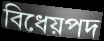
বিধেয়পদ